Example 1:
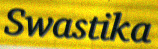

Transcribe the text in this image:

Swastika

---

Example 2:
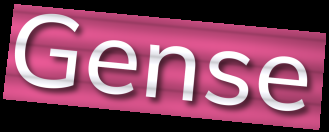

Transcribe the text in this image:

Gense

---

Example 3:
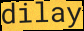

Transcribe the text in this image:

dilay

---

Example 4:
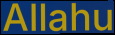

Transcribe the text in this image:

Allahu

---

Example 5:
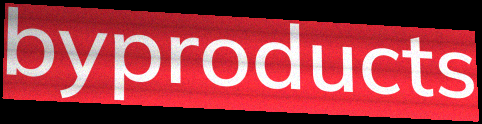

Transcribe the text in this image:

byproducts